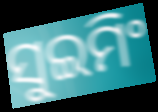
ସୁଇମିଂ